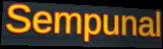
Sempunal